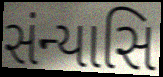
સંન્યાસિ